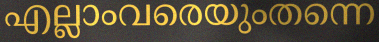
എല്ലാംവരെയുംതന്നെ